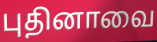
புதினாவை